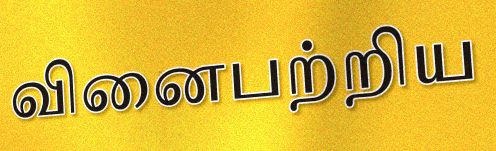
வினைபற்றிய